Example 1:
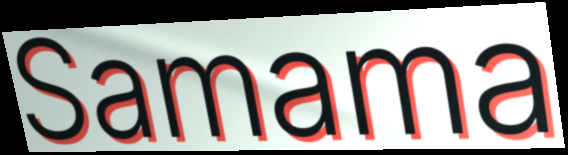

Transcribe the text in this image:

Samama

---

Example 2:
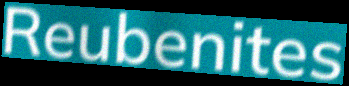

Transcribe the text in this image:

Reubenites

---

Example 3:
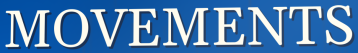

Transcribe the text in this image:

MOVEMENTS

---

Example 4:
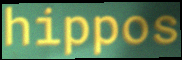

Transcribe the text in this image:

hippos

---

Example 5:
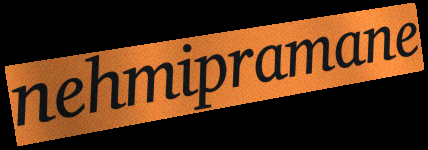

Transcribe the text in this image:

nehmipramane